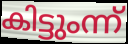
കിട്ടുംന്ന്